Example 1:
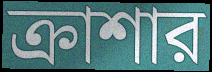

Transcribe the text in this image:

ক্রাশার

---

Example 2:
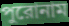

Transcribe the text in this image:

পুরোনাম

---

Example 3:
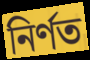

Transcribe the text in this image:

নির্ণত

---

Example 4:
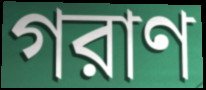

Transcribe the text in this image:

গরাণ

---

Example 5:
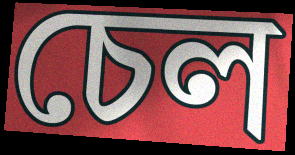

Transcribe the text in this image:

চেল